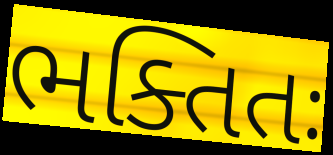
ભક્તિતઃ